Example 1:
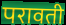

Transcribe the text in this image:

परावती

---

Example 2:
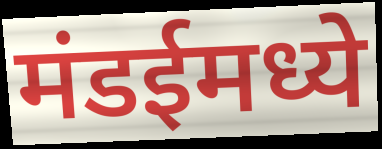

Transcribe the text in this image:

मंडईमध्ये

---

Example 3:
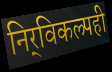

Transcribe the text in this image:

निर्विकल्पही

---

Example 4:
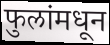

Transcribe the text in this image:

फुलांमधून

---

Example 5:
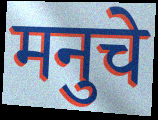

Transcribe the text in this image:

मनुचे